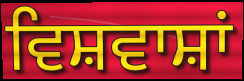
ਵਿਸ਼ਵਾਸ਼ਾਂ